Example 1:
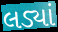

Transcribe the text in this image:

લડ્યાં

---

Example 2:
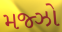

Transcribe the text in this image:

મજ્ઝો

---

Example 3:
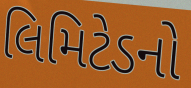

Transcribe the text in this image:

લિમિટેડનો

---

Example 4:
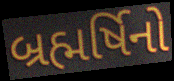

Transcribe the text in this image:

બ્રહ્મર્ષિનો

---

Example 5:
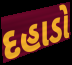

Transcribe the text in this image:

દહાડો